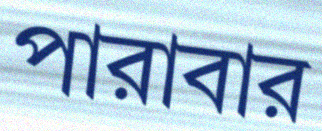
পারাবার